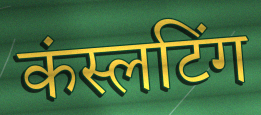
कंस्लटिंग